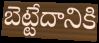
బెట్టేదానికి